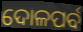
ଦୋଳପର୍ବ